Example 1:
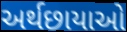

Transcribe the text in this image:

અર્થછાયાઓ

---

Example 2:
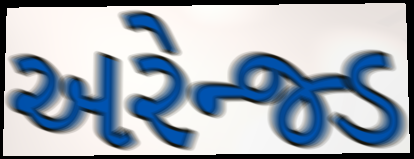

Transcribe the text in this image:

અરેન્જ્ડ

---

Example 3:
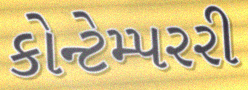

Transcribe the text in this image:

કોન્ટેમ્પરરી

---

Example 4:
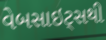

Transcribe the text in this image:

વેબસાઇટ્સથી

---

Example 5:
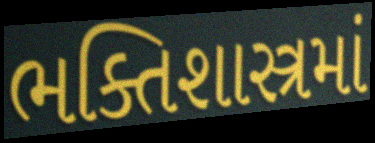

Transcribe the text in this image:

ભક્તિશાસ્ત્રમાં